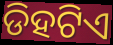
ଡିହଟିଏ